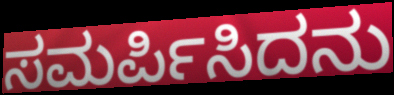
ಸಮರ್ಪಿಸಿದನು